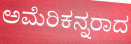
ಅಮೆರಿಕನ್ನರಾದ